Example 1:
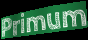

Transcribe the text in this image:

Primum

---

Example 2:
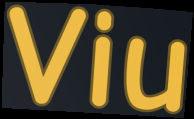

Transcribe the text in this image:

Viu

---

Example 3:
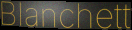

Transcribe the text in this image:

Blanchett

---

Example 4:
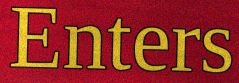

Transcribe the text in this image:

Enters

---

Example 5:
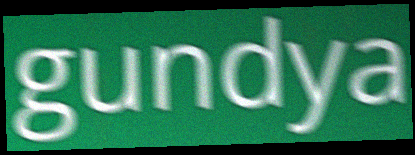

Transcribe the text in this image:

gundya